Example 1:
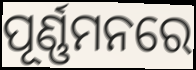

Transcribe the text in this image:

ପୂର୍ଣ୍ଣମନରେ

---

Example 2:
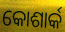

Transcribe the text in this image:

କୋଶାର୍କ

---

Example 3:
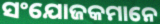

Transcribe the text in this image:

ସଂଯୋଜକମାନେ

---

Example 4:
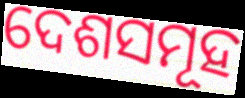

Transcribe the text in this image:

ଦେଶସମୂହ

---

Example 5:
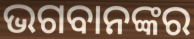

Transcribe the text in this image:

ଭଗବାନଙ୍କର